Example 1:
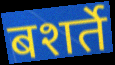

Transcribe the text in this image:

बशर्ते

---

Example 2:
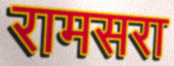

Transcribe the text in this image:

रामसरा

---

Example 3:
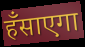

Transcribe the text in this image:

हँसाएगा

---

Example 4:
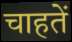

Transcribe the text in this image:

चाहतें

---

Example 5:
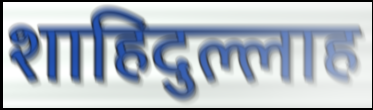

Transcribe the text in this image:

शाहिदुल्लाह